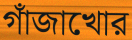
গাঁজাখোর